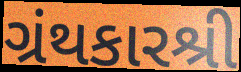
ગ્રંથકારશ્રી